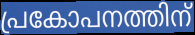
പ്രകോപനത്തിന്